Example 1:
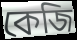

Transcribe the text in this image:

কেজি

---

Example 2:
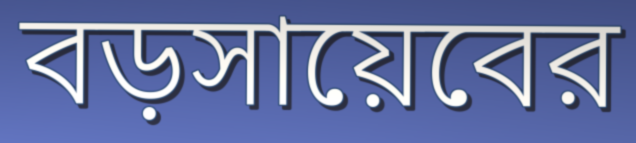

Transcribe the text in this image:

বড়সায়েবের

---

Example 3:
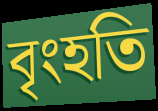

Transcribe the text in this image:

বৃংহতি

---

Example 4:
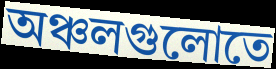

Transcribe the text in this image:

অঞ্চলগুলোতে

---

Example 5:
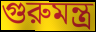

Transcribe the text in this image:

গুরুমন্ত্র